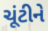
ચૂંટીને